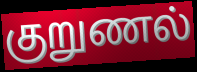
குறுணல்